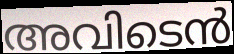
അവിടെൻ